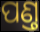
ପଣ୍ତ